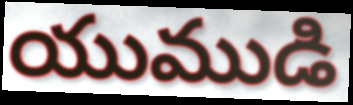
యుముడి